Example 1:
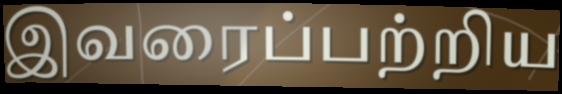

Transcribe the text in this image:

இவரைப்பற்றிய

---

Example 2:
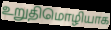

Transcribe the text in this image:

உறுதிமொழியாக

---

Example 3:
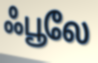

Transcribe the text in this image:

ஃபூலே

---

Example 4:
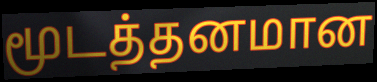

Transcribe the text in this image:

மூடத்தனமான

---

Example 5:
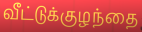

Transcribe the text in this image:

வீட்டுக்குழந்தை